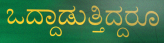
ಒದ್ದಾಡುತ್ತಿದ್ದರೂ